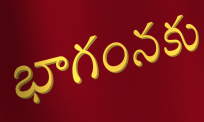
భాగంనకు